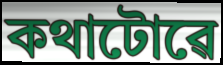
কথাটোৱে